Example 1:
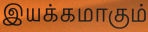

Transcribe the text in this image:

இயக்கமாகும்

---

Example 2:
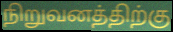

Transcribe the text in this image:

நிறுவனத்திற்கு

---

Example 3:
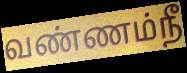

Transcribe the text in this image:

வண்ணம்நீ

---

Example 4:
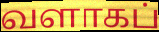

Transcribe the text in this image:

வளாகப்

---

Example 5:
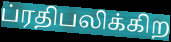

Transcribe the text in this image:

ப்ரதிபலிக்கிற